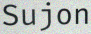
Sujon